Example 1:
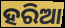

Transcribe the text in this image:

ହରିଆ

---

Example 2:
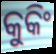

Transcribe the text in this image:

କୁକିଂ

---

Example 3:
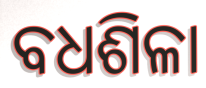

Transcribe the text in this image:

ବଧଶିଳା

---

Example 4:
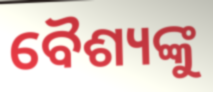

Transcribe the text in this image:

ବୈଶ୍ୟଙ୍କୁ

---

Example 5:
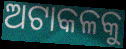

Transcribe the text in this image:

ଅଟାକଳକୁ